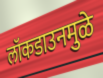
लॉकडाउनमुळे